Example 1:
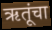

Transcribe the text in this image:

ऋतूंचा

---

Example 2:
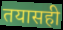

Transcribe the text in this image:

तयासही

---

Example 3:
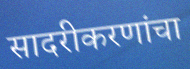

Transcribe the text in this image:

सादरीकरणांचा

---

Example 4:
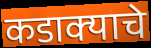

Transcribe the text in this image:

कडाक्याचे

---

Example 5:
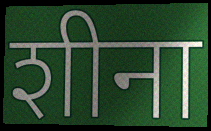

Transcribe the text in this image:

शीना